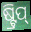
ଷ୍ଟ୍ରିପ୍